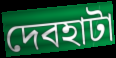
দেবহাটা